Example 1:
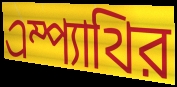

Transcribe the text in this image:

এম্প্যাথির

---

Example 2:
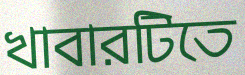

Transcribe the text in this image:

খাবারটিতে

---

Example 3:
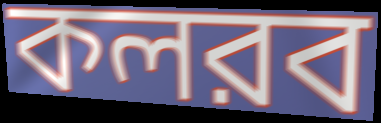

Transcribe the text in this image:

কলরব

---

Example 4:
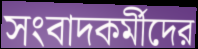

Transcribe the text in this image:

সংবাদকর্মীদের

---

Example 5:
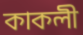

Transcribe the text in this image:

কাকলী